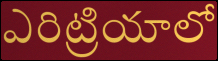
ఎరిట్రియాలో